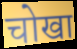
चोखा